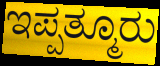
ಇಪ್ಪತ್ಮೂರು